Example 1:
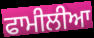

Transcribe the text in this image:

ਫਾਮੀਲੀਆ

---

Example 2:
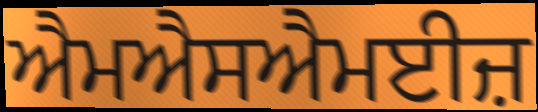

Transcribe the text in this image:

ਐਮਐਸਐਮਈਜ਼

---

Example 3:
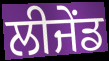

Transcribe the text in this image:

ਲੀਜੇਂਡ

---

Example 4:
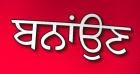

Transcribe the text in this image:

ਬਨਾਂਉਣ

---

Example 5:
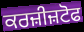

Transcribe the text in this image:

ਕਰਜ਼ੀਜ਼ਟੋਫ